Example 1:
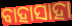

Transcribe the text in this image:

ବାହାସାହା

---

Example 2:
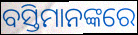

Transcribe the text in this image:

ବସ୍ତିମାନଙ୍କରେ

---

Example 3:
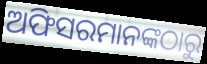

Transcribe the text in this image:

ଅଫିସରମାନଙ୍କଠାରୁ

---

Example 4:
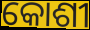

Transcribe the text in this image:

କୋଶୀ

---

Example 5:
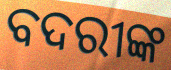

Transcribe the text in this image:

ବଦରୀଙ୍କ